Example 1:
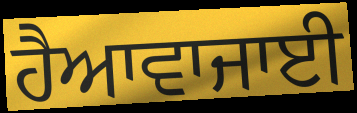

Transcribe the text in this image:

ਹੈਆਵਾਜਾਈ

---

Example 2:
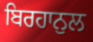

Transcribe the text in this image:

ਬਿਰਹਾਨੁਲ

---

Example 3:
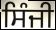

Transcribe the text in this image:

ਸਿੰਜੀ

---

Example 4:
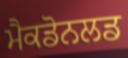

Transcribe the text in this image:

ਮੈਕਡੋਨਲਡ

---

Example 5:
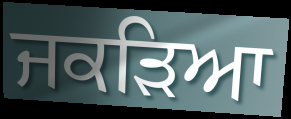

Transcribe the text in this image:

ਜਕੜਿਆ